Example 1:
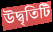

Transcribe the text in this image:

উদ্বৃতিটি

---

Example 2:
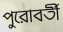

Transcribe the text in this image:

পুরোবর্তী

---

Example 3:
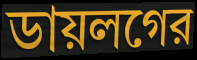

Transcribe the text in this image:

ডায়লগের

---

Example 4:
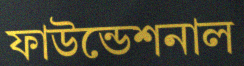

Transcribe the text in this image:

ফাউন্ডেশনাল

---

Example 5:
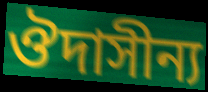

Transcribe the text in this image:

ঔদাসীন্য